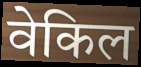
वेकिल